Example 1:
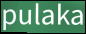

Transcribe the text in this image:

pulaka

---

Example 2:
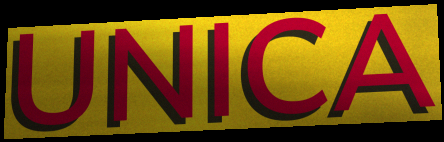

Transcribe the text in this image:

UNICA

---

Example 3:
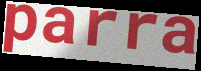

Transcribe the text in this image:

parra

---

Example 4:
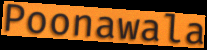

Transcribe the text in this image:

Poonawala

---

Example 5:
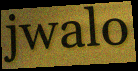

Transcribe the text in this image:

jwalo